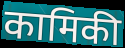
कामिकी